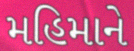
મહિમાને